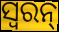
ସ୍ୱରନ୍